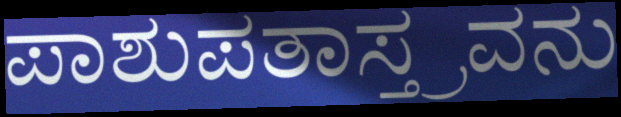
ಪಾಶುಪತಾಸ್ತ್ರವನು